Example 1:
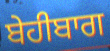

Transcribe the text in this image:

ਬੇਹੀਬਾਗ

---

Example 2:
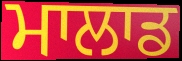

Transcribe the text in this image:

ਮਾਲਾਡ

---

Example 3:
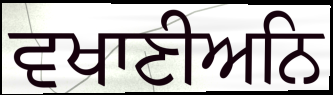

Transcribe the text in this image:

ਵਖਾਣੀਅਨਿ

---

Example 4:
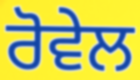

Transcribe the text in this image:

ਰੋਵੇਲ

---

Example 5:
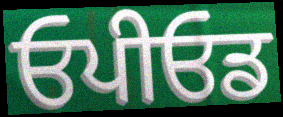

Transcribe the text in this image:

ਓਪੀਓਡ